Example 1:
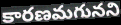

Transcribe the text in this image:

కారణమగునని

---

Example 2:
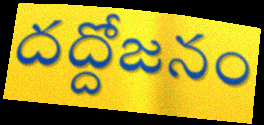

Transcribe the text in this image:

దద్దోజనం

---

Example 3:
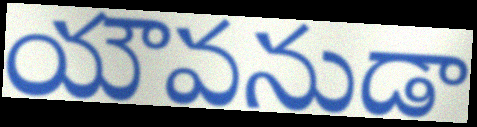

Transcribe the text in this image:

యౌవనుడా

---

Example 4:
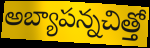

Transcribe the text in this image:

అబ్యాపన్నచిత్తో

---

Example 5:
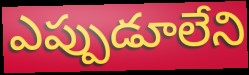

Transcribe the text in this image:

ఎప్పుడూలేని